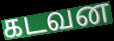
கடவன